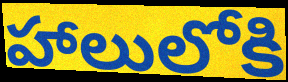
హాలులోకి